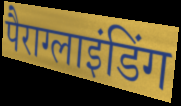
पैराग्लाइंडिंग